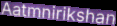
Aatmnirikshan